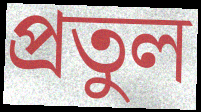
প্রতুল